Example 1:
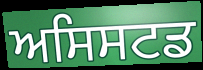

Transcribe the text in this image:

ਅਸਿਸਟਡ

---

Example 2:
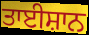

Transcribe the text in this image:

ਤਾਈਸ਼ਾਨ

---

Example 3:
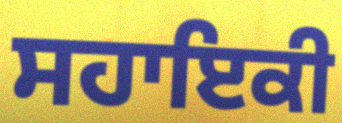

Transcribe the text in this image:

ਸਹਾਇਕੀ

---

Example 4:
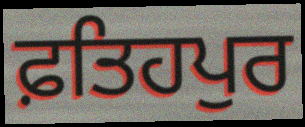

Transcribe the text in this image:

ਫ਼ਤਿਹਪੁਰ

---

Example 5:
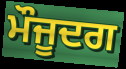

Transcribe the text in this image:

ਮੌਜੂਦਗ